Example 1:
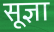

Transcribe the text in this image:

सूज्ञा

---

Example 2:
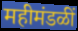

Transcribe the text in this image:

महीमंडळीं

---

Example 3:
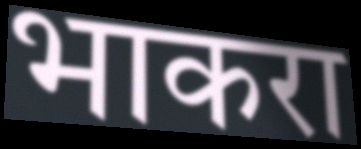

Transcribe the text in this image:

भाकरा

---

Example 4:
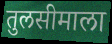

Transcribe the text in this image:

तुलसीमाला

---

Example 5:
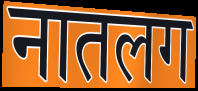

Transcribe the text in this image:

नातलग